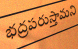
భద్రపరుస్తామని